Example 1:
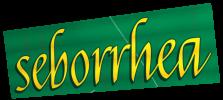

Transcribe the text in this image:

seborrhea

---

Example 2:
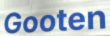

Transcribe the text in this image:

Gooten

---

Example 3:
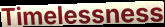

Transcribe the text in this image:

Timelessness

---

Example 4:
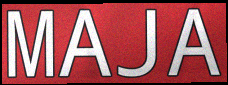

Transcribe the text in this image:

MAJA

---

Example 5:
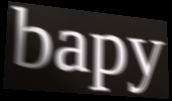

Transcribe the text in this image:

bapy